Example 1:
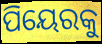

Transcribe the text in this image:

ପିୟେରକୁ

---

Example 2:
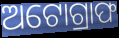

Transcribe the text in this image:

ଅଟୋଗ୍ରାଫ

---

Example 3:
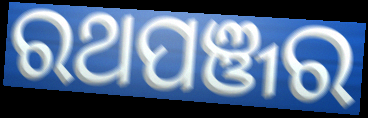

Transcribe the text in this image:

ରଥପଞ୍ଜର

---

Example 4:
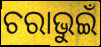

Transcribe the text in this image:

ଚରାଭୁଇଁ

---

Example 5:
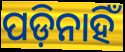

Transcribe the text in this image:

ପଡ଼ିନାହିଁ